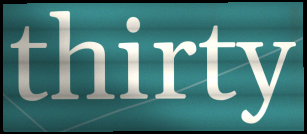
thirty